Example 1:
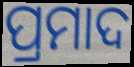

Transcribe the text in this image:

ପ୍ରମାଦ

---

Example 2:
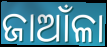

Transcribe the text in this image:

ଜାଆଁଳା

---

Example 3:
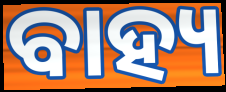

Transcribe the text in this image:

ବାହ୍ୟ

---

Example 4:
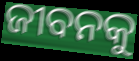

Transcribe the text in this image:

ଜୀବନକୁ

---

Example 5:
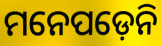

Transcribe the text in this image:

ମନେପଡ଼େନି